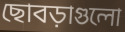
ছোবড়াগুলো